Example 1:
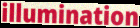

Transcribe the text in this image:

illumination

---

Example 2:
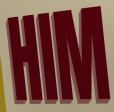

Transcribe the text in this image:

HIM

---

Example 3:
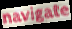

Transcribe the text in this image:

navigate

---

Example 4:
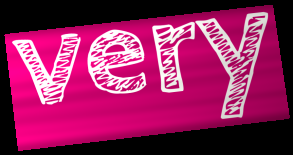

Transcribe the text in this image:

very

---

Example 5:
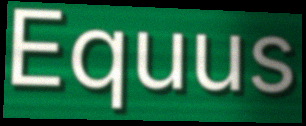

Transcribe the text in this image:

Equus